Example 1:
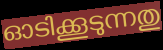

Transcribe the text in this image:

ഓടിക്കൂടുന്നതു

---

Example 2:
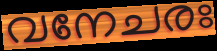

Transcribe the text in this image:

വനേചരഃ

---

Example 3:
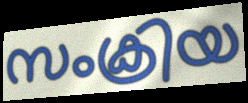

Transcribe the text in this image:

സംക്രിയ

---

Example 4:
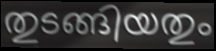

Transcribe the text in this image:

തുടങ്ങിയതും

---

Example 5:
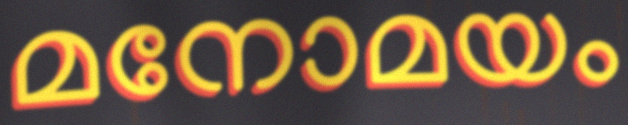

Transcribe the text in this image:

മനോമയം